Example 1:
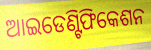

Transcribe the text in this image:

ଆଇଡେଣ୍ଟିଫିକେଶନ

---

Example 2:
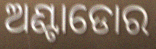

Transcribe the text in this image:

ଅଣ୍ଟାଡୋର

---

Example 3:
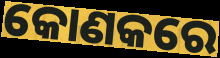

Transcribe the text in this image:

କୋଣକରେ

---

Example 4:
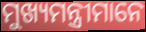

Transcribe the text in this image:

ମୁଖ୍ୟମନ୍ତ୍ରୀମାନେ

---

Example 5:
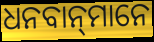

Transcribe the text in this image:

ଧନବାନ୍‍ମାନେ